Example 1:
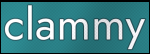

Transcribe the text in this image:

clammy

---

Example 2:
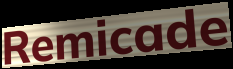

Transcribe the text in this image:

Remicade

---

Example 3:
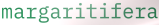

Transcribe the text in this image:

margaritifera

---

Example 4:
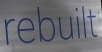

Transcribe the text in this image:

rebuilt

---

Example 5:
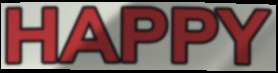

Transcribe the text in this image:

HAPPY